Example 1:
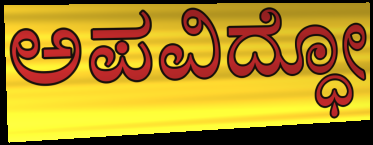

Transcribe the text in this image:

ಅಪವಿದ್ಧೋ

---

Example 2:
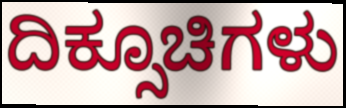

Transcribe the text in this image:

ದಿಕ್ಸೂಚಿಗಳು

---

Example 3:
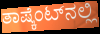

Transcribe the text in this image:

ತಾಷ್ಕೆಂಟ್‌ನಲ್ಲಿ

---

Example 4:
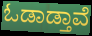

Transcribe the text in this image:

ಓಡಾಡ್ತಾವೆ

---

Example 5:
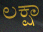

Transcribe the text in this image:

ಲಕ್ಷಾ